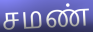
சமண்